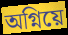
অগ্নিয়ে